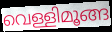
വെള്ളിമൂങ്ങ